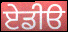
ਏਡੀੳ